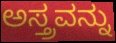
ಅಸ್ತ್ರವನ್ನು